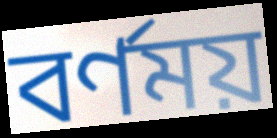
বর্ণময়